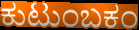
ಕುಟುಂಬಕಂ